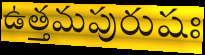
ఉత్తమపురుషః